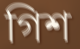
গিশ